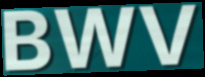
BWV